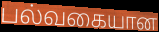
பல்வகையான